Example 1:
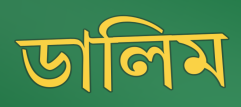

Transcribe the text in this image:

ডালিম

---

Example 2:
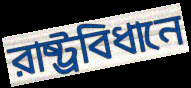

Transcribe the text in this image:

রাষ্ট্রবিধানে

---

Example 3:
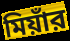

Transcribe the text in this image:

মিয়াঁর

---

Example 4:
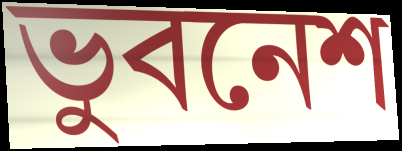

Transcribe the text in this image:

ভুবনেশ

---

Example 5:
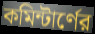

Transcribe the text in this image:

কমিন্টার্ণের